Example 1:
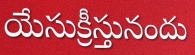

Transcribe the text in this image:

యేసుక్రీస్తునందు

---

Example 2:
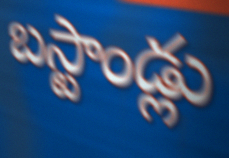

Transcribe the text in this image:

బస్టాండ్లు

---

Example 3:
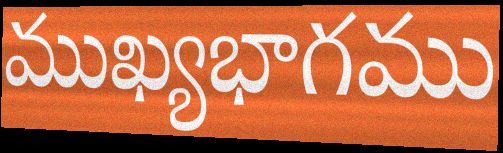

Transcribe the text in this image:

ముఖ్యభాగము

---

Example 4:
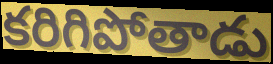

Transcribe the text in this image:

కరిగిపోతాడు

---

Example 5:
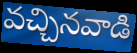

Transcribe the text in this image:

వచ్చినవాడి